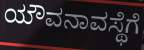
ಯೌವನಾವಸ್ಥೆಗೆ